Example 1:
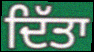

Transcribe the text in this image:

ਦਿੱਤਾ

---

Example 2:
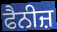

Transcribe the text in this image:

ਫੈਨੀਜ਼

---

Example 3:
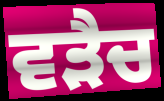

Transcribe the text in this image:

ਵੜੈਚ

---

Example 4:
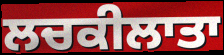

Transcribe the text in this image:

ਲਚਕੀਲਾਤਾ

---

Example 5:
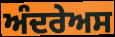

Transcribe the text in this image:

ਅੰਦਰੇਅਸ